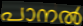
പാനൽ